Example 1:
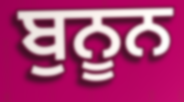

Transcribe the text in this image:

ਬੁਨੂਨ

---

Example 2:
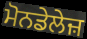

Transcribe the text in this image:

ਮੋਨਡੇਲੇਜ਼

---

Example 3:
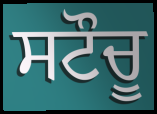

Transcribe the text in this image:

ਸਟੌਚੂ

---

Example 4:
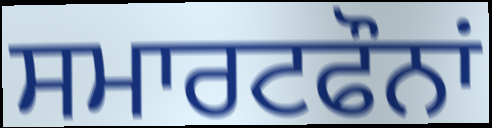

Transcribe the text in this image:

ਸਮਾਰਟਫੌਨਾਂ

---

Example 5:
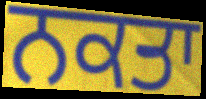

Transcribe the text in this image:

ਨਕਤਾ